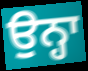
ਉਨ੍ਹਾ